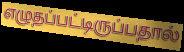
எழுதப்பட்டிருப்பதால்